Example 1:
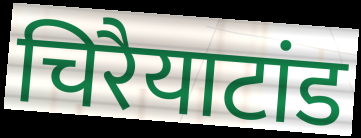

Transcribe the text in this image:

चिरैयाटांड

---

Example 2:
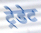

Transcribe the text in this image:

ट्रेडेट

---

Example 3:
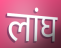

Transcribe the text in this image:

लांघ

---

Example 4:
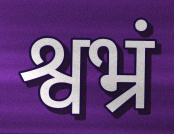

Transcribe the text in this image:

श्वभ्रं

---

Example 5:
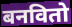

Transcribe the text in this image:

बनवितो